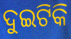
ଦୁଇଟିକି